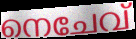
നെചേവ്